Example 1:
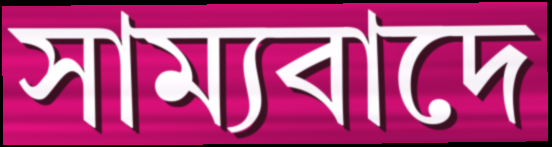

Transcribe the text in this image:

সাম্যবাদে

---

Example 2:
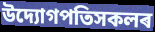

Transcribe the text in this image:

উদ্যোগপতিসকলৰ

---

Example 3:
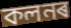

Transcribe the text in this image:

কলনৰ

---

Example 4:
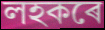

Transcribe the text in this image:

লহকৰে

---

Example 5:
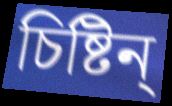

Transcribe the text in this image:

চিষ্টিন্